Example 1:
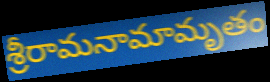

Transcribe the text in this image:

శ్రీరామనామామృతం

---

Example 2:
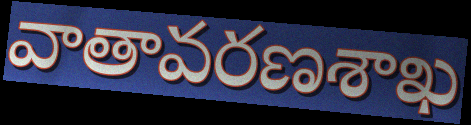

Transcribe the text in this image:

వాతావరణశాఖ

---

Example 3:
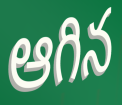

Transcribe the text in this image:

ఆగిన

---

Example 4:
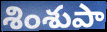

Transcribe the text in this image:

శింశుపా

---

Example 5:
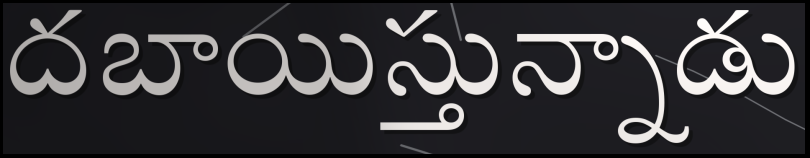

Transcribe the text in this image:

దబాయిస్తున్నాడు